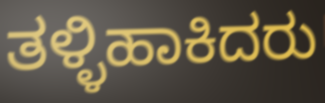
ತಳ್ಳಿಹಾಕಿದರು